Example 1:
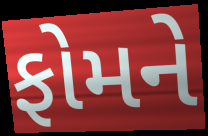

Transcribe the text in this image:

ફોમને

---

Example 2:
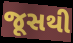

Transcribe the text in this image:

જૂસથી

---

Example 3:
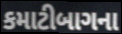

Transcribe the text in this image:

કમાટીબાગના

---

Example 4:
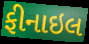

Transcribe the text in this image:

ફીનાઇલ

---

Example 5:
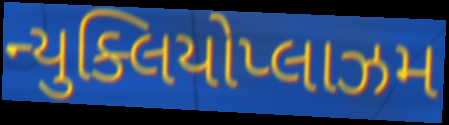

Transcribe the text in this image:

ન્યુક્લિયોપ્લાઝમ